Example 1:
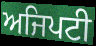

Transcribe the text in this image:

ਅਜਿਪਟੀ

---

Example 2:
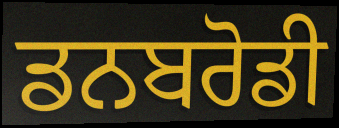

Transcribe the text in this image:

ਡਨਬਰੋਡੀ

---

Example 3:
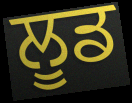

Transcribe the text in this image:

ਲੂਡ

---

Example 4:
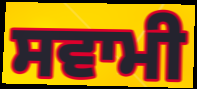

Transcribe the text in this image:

ਸਵਾਮੀ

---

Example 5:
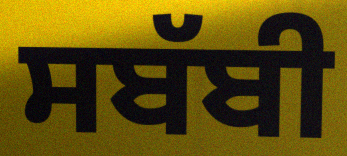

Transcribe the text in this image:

ਸਬੱਬੀ